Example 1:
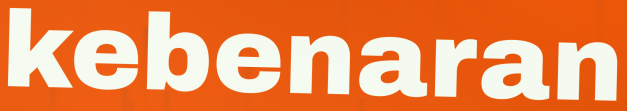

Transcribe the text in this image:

kebenaran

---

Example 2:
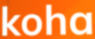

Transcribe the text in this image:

koha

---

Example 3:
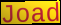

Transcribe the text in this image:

Joad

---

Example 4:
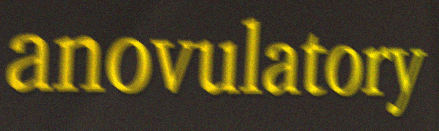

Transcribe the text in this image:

anovulatory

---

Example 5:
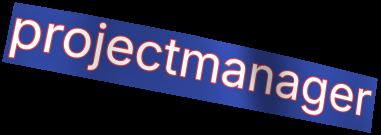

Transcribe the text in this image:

projectmanager